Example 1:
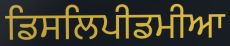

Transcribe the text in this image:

ਡਿਸਲਿਪੀਡਮੀਆ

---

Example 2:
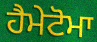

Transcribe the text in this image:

ਹੈਮੇਟੋਮਾ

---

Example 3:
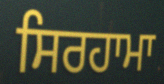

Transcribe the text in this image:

ਸਿਰਹਾਮਾ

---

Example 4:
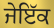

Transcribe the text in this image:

ਜੇਇੱਕ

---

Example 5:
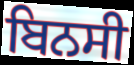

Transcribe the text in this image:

ਬਿਨਸੀ